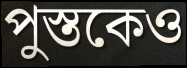
পুস্তকেও